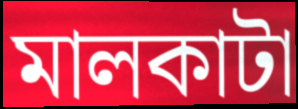
মালকাটা